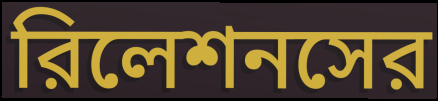
রিলেশনসের